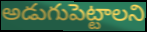
అడుగుపెట్టాలని